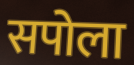
सपोला